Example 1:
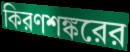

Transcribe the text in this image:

কিরণশঙ্করের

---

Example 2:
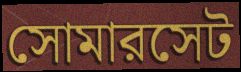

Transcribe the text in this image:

সোমারসেট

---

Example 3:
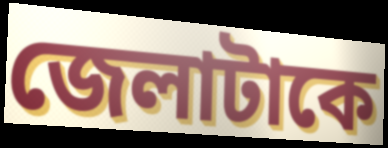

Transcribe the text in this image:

জেলাটাকে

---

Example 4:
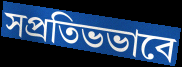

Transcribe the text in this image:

সপ্রতিভভাবে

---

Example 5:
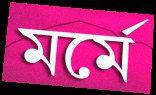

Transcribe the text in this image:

মর্মে